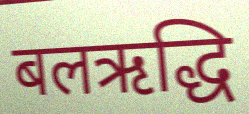
बलऋद्धि